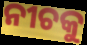
ନୀଚକୁ